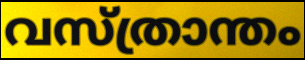
വസ്ത്രാന്തം